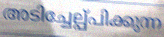
അടിച്ചേല്പ്പിക്കുന്ന